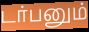
டர்பனும்